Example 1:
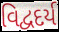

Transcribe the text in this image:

વિદ્વદર્ય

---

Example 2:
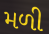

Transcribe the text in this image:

મળી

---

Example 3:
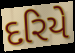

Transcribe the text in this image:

દરિયે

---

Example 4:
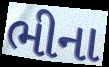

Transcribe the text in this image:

ભીના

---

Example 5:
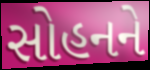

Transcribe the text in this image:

સોહનને